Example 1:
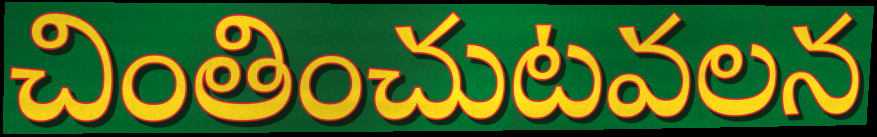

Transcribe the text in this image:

చింతించుటవలన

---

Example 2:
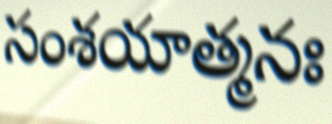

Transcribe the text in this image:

సంశయాత్మనః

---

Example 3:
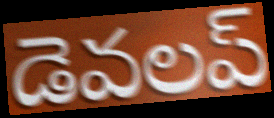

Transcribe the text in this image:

డెవలప్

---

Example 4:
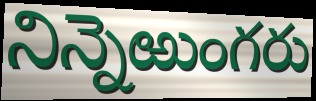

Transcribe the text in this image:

నిన్నెఱుంగరు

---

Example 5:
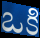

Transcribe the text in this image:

ఒకి